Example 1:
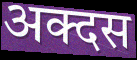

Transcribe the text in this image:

अक्दस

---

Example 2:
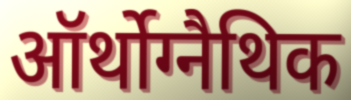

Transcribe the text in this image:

ऑर्थोग्नैथिक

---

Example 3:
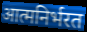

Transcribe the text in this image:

आत्मनिर्भरत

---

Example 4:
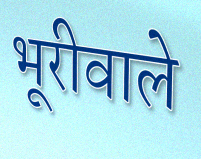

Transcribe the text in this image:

भूरीवाले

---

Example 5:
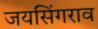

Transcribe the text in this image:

जयसिंगराव